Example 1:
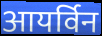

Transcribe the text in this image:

आयर्विन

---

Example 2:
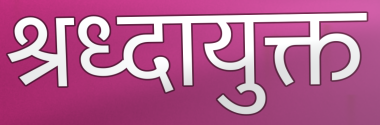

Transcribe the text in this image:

श्रध्दायुक्त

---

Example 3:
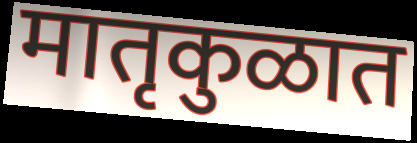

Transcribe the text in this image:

मातृकुळात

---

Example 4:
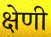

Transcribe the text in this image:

क्षेणी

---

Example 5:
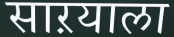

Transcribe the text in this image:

साऱयाला